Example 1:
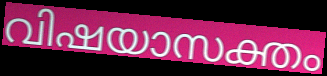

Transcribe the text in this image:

വിഷയാസക്തം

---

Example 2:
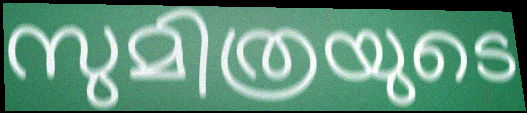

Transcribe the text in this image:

സുമിത്രയുടെ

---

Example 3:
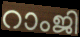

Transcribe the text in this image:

റാംജി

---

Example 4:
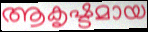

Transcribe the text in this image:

ആകൃഷ്ടമായ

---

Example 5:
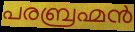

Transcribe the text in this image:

പരബ്രഹ്മൻ